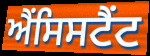
ਐਂਸਿਸਟੈਂਟ